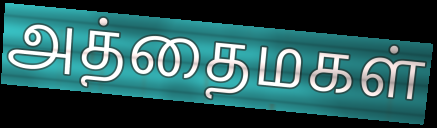
அத்தைமகள்